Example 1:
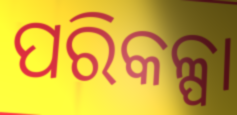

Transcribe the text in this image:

ପରିକଳ୍ପା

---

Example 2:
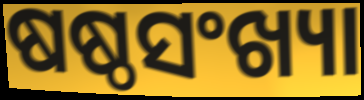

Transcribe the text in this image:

ଷଷ୍ଠସଂଖ୍ୟା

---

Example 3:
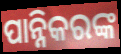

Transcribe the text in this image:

ପାନ୍ନିକରଙ୍କ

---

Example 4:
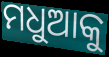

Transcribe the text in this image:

ମଧୁଆକୁ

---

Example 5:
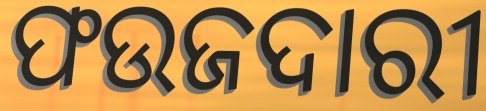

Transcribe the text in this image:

ଫଉଜଦାରୀ